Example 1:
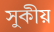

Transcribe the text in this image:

সুকীয়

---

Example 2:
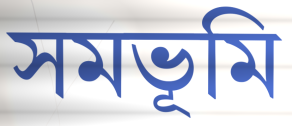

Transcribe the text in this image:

সমভূমি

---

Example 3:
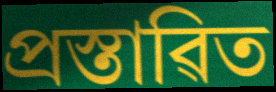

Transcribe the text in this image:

প্ৰস্তাৱিত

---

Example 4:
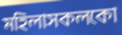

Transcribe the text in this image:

মহিলাসকলকো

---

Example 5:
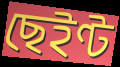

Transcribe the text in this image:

ছেইণ্ট